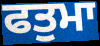
ਫਤੁਮਾ